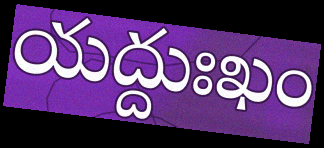
యద్దుఃఖం